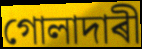
গোলাদাৰী